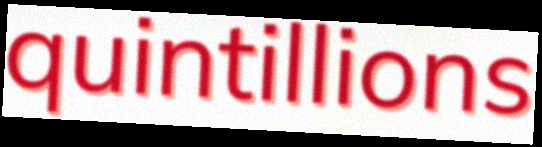
quintillions